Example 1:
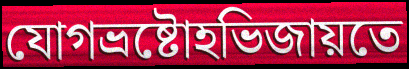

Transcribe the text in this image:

যোগভ্রষ্টোহভিজায়তে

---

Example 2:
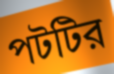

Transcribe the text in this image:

পটটির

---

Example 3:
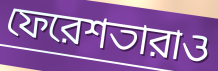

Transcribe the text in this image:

ফেরেশতারাও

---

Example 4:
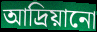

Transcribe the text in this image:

আদ্রিয়ানো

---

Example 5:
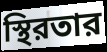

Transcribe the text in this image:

স্থিরতার